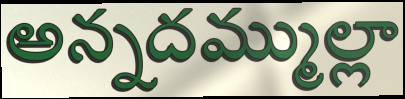
అన్నదమ్ముల్లా